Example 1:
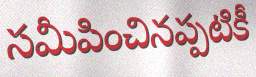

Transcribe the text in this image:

సమీపించినప్పటికీ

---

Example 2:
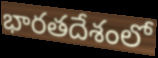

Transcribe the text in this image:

భారతదేశంలో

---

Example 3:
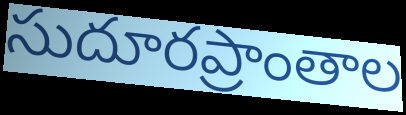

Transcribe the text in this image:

సుదూరప్రాంతాల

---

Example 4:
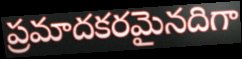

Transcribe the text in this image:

ప్రమాదకరమైనదిగా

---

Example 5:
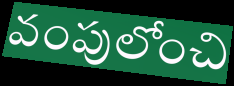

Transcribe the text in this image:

వంపులోంచి